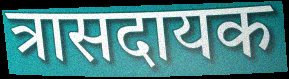
त्रासदायक